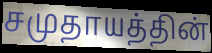
சமுதாயத்தின்